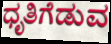
ಧೃತಿಗೆಡುವ